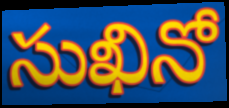
సుఖినో